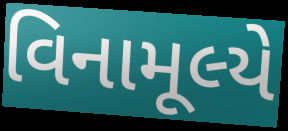
વિનામૂલ્યે